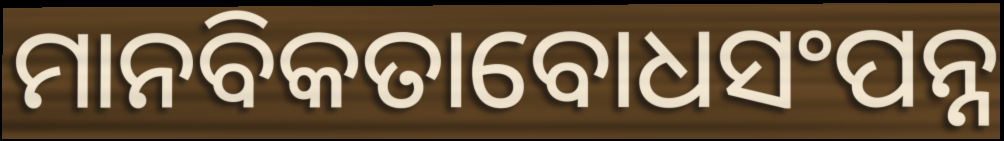
ମାନବିକତାବୋଧସଂପନ୍ନ